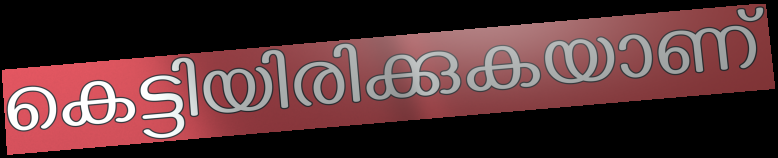
കെട്ടിയിരിക്കുകയാണ്